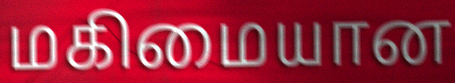
மகிமையான